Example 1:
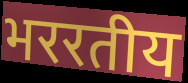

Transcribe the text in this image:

भररतीय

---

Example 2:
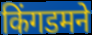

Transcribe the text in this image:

किंगडमने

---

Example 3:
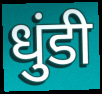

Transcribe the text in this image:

धुंडी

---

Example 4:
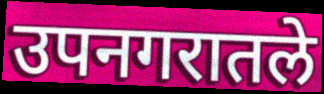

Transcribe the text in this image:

उपनगरातले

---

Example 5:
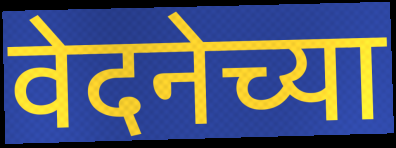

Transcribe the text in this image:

वेदनेच्या